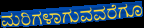
ಮರಿಗಳಾಗುವವರೆಗೂ